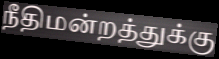
நீதிமன்றத்துக்கு